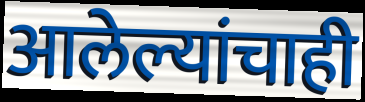
आलेल्यांचाही